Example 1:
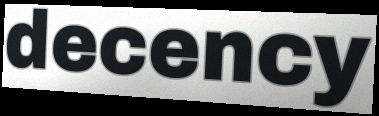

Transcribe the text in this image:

decency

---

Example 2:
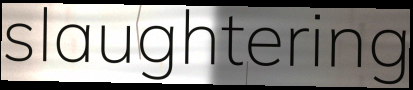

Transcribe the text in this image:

slaughtering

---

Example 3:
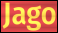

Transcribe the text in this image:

Jago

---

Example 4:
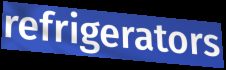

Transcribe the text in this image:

refrigerators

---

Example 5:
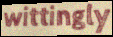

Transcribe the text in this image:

wittingly